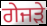
ਗੇਜੜੇ